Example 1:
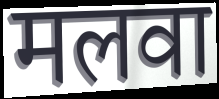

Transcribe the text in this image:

मलवा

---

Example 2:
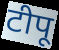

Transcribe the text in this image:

टीपू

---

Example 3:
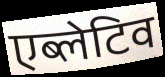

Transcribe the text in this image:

एब्लेटिव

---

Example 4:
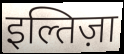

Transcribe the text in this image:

इल्तिज़ा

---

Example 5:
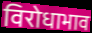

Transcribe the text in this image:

विरोधाभाव